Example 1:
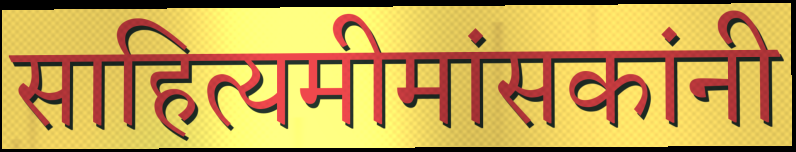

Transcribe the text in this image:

साहित्यमीमांसकांनी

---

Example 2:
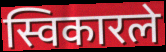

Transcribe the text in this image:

स्विकारले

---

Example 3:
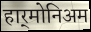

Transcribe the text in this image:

हार्मोनिअम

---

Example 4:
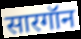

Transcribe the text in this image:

सारगॉन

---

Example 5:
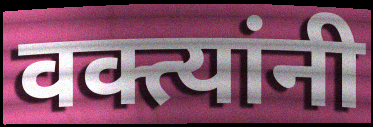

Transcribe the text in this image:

वक्त्यांनी